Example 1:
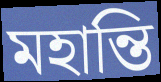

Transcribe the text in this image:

মহান্তি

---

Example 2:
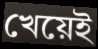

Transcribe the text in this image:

খেয়েই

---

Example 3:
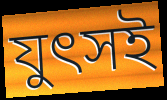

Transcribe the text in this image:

যুৎসই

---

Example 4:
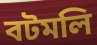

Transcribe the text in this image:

বটমলি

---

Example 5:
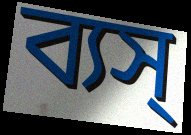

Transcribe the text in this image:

ব্যস্